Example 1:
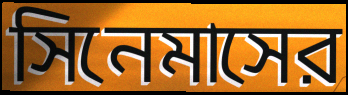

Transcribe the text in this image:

সিনেমাসের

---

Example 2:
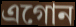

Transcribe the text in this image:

এগোন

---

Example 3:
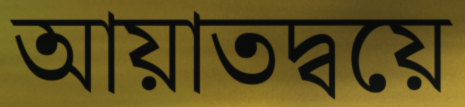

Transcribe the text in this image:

আয়াতদ্বয়ে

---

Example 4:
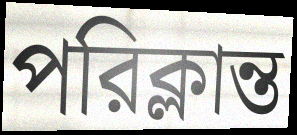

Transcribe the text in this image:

পরিক্লান্ত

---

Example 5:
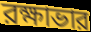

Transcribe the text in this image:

রক্ষাভার